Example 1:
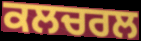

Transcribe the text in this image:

ਕਲਚਰਲ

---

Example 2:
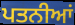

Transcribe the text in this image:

ਪਤਨੀਆਂ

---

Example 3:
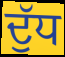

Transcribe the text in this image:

ਦੁੱਧ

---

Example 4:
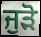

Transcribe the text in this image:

ਜੁੜੋ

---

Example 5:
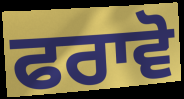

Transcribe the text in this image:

ਫਰਾਵੋ